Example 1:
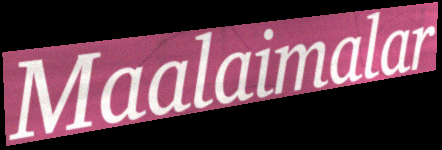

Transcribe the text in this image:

Maalaimalar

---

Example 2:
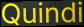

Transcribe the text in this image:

Quindi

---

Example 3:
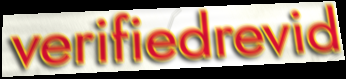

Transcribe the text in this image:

verifiedrevid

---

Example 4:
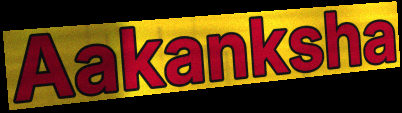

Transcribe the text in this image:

Aakanksha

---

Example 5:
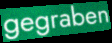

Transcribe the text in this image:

gegraben